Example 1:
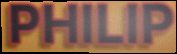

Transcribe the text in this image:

PHILIP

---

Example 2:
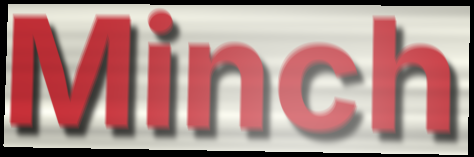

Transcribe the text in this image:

Minch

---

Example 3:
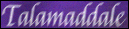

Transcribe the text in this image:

Talamaddale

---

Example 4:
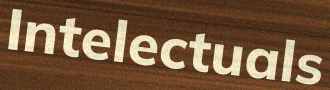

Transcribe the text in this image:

Intelectuals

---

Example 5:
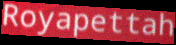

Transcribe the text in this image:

Royapettah